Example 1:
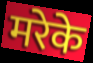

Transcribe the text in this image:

मरेके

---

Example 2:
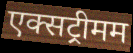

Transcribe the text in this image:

एक्सट्रीमम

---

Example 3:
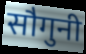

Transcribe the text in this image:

सौगुनी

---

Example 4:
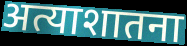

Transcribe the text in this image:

अत्याशातना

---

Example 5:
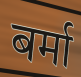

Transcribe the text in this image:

बर्मा